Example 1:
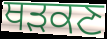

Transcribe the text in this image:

ਥੜਕਣ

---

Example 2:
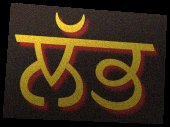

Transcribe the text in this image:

ਲੱਭ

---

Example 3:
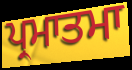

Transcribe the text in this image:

ਪ੍ਰਮਾਤਮਾ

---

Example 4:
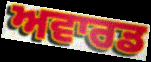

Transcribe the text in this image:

ਅਵਾਰਡ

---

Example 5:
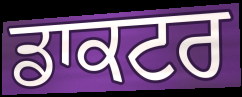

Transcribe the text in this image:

ਡਾਕਟਰ